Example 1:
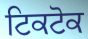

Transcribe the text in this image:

ਟਿਕਟੋਕ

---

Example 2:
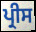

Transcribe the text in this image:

ਪ੍ਰੀਸ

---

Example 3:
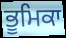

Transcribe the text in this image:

ਭੂਮਿਕਾ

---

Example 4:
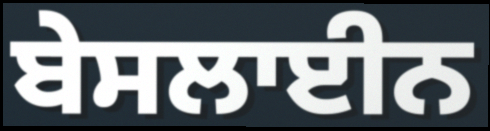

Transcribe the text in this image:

ਬੇਸਲਾਈਨ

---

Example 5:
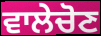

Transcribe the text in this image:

ਵਾਲੇਚੋਣ